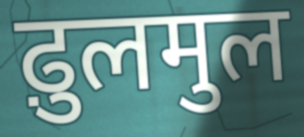
ढ़ुलमुल